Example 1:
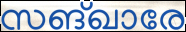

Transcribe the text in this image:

സങ്ഖാരേ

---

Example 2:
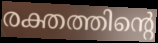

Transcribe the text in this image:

രക്തത്തിന്റെ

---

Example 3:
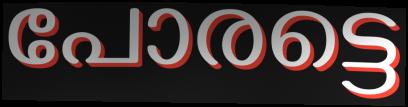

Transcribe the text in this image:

പോരട്ടെ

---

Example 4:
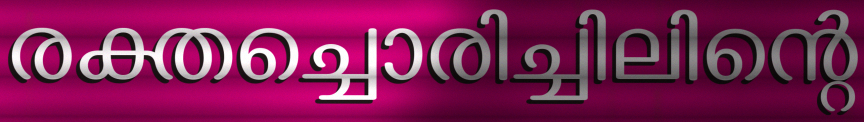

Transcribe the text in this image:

രക്തച്ചൊരിച്ചിലിന്റെ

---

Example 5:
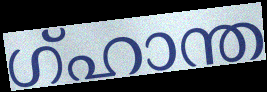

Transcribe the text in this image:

ഗ്ഹാന്ത